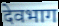
देवभाग